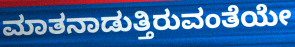
ಮಾತನಾಡುತ್ತಿರುವಂತೆಯೇ